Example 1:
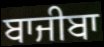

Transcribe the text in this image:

ਬਾਜੀਬਾ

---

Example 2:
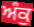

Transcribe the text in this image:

ਅੰਕੁ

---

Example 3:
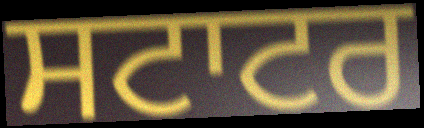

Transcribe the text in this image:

ਸਟਾਟਰ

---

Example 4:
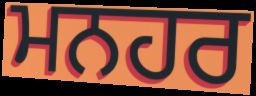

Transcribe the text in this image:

ਮਨਹਰ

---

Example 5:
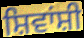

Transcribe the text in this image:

ਸ਼ਿਵਾਂਸ਼ੀ